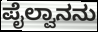
ಪೈಲ್ವಾನನು